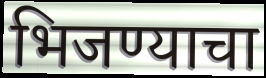
भिजण्याचा